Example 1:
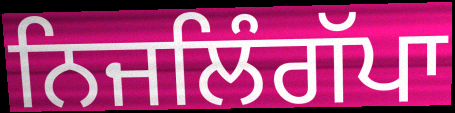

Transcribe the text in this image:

ਨਿਜਲਿੰਗੱਪਾ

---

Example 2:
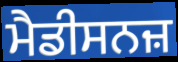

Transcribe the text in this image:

ਮੈਡੀਸਨਜ਼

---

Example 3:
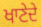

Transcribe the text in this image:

ਖਾਣੇਦੇ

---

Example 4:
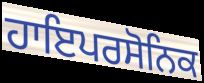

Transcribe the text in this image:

ਹਾਇਪਰਸੋਨਿਕ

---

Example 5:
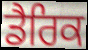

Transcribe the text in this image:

ਡੈਰਿਕ